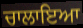
ਚਾਲਾਇਆ